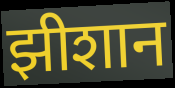
झीशान